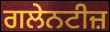
ਗਲੇਨਟੀਜ਼